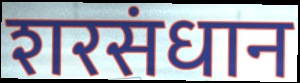
शरसंधान